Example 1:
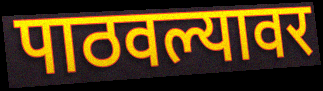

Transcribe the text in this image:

पाठवल्यावर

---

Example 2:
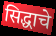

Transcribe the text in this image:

सिद्धाचे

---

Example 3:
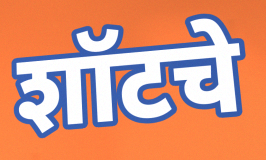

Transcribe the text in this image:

शॉटचे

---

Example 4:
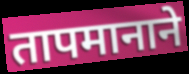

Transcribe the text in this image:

तापमानाने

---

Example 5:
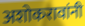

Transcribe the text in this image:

अशोकरावांनी